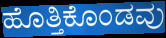
ಹೊತ್ತಿಕೊಂಡವು